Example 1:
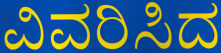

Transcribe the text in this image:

ವಿವರಿಸಿದ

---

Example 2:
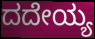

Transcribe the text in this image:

ದದೇಯ್ಯ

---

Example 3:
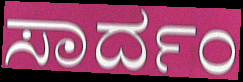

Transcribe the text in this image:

ಸಾರ್ದಂ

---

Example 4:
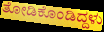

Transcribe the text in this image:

ತೋಡಿಕೊಂಡಿದ್ದಳು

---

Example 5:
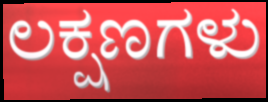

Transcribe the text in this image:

ಲಕ್ಷಣಗಳು